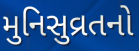
મુનિસુવ્રતનો